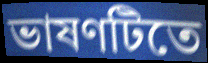
ভাষণটিতে